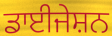
ਡਾਈਜੇਸ਼ਨ